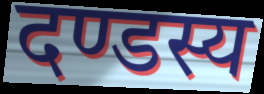
दण्डस्य